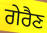
ਗੇਰੈਣ